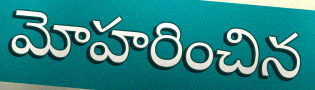
మోహరించిన